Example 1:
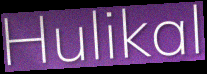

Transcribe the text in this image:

Hulikal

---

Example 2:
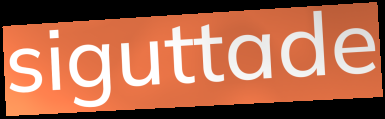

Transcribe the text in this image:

siguttade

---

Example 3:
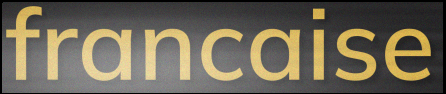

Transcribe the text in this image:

francaise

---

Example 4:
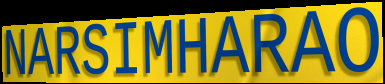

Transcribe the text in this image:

NARSIMHARAO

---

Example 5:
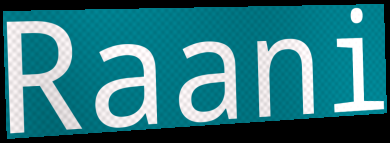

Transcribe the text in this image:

Raani